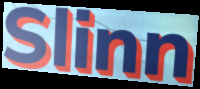
Slinn